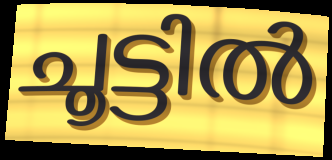
ചൂട്ടിൽ